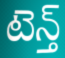
టెన్త్